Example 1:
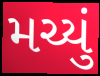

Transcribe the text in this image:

મચ્યું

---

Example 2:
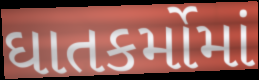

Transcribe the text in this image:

ઘાતકર્મોમાં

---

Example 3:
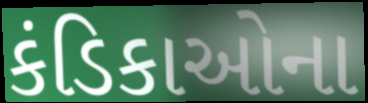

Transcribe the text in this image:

કંડિકાઓના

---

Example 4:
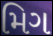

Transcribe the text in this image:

મિગ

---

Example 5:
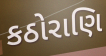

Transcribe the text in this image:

કઠોરાણિ